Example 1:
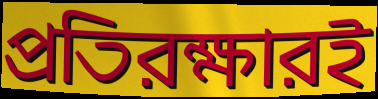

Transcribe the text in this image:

প্রতিরক্ষারই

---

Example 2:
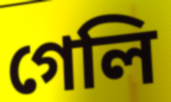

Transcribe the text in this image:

গেলি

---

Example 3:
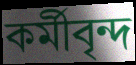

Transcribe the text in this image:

কর্মীবৃন্দ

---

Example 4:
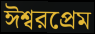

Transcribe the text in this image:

ঈশ্বরপ্রেম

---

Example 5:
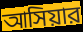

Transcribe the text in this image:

আসিয়ার